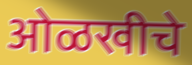
ओळखीचे